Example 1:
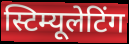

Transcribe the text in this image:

स्टिम्यूलेटिंग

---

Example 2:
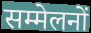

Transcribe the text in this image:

सम्मेलनों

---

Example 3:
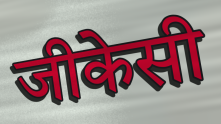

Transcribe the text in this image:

जीकेसी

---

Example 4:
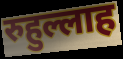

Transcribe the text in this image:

रुहुल्लाह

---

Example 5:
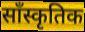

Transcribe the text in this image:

साँस्कृतिक